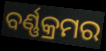
ବର୍ଣ୍ଣକ୍ରମର